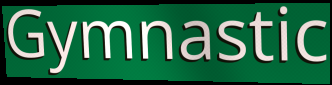
Gymnastic